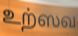
உற்ஸவ